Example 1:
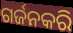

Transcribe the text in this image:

ଗର୍ଜନକରି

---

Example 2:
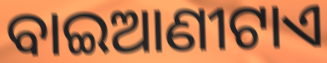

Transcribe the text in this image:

ବାଇଆଣୀଟାଏ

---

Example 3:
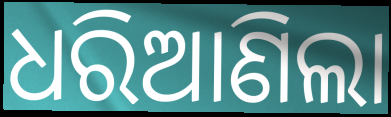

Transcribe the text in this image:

ଧରିଆଣିଲା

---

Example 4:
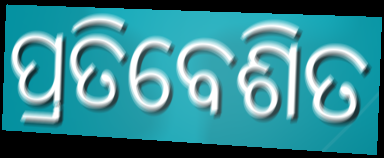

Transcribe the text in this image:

ପ୍ରତିବେଶିତ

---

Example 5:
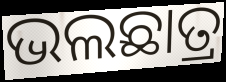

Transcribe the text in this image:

ଭଲଛାତ୍ର